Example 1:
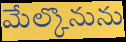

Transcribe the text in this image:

మేల్కొనును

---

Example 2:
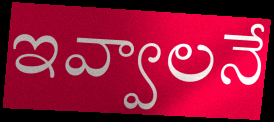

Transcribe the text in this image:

ఇవ్వాలనే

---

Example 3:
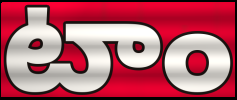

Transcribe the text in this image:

టాం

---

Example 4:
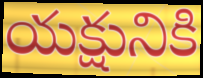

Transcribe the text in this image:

యక్షునికి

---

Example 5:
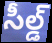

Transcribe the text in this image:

సీల్డ్